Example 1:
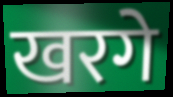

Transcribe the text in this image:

खरगे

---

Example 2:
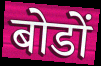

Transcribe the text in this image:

बोडों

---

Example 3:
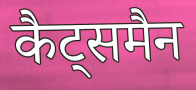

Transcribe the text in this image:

कैट्समैन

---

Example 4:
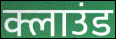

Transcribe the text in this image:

क्लाउंड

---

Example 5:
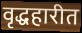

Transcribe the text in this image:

वृद्धहारीत